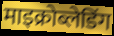
माइक्रोब्लेडिंग